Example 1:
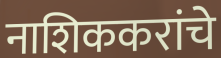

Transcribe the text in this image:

नाशिककरांचे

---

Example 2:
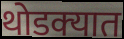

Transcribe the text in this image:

थोडक्‍यात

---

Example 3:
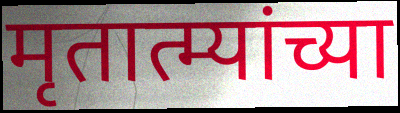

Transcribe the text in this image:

मृतात्म्यांच्या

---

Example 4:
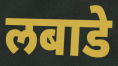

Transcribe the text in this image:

लबाडे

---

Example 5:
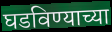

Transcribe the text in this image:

घडविण्याच्या